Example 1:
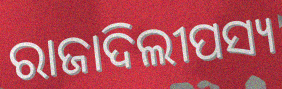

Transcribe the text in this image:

ରାଜାଦିଲୀପସ୍ୟ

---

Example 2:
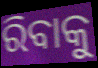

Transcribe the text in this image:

ରିବାକୁ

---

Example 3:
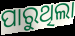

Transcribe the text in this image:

ପାରୁଥିଲା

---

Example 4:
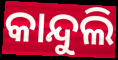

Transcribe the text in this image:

କାନ୍ଦୁଲି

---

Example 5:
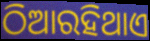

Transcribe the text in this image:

ଠିଆରହିଥାଏ